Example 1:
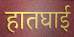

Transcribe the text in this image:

हातघाई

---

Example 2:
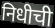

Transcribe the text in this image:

निधीची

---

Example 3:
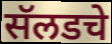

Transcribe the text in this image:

सॅलडचे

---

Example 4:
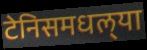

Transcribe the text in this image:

टेनिसमधल्या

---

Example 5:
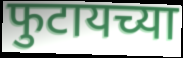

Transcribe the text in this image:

फुटायच्या